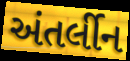
અંતર્લીન